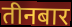
तीनबार